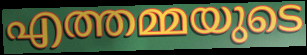
എത്തമ്മയുടെ